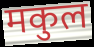
मकुल